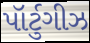
પૉર્ટુગીઝ